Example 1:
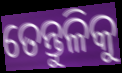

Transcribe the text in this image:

ତେନ୍ତୁଳିକୁ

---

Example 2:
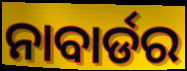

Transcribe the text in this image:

ନାବାର୍ଡର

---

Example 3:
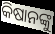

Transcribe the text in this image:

କିଷାନଙ୍କୁ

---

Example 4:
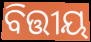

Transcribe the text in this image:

ବିତ୍ତୀୟ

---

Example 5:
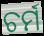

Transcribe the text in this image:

ଚର୍ମ